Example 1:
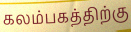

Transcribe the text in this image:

கலம்பகத்திற்கு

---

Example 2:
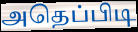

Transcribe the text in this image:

அதெப்பிடி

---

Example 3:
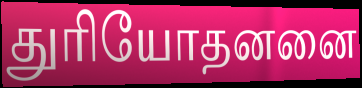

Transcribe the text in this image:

துரியோதனனை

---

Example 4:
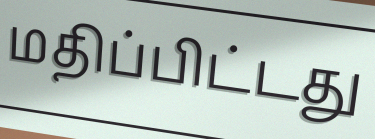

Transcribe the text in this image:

மதிப்பிட்டது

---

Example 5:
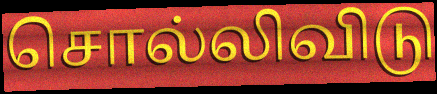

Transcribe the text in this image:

சொல்லிவிடு